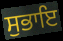
ਸੁਭਾਇ